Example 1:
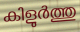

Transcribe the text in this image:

കിളുർത്തു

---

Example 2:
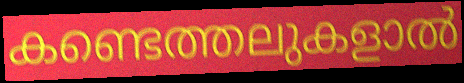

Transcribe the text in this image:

കണ്ടെത്തലുകളാൽ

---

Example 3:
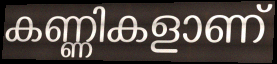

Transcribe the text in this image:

കണ്ണികളാണ്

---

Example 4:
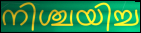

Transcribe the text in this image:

നിശ്ചയിച്ച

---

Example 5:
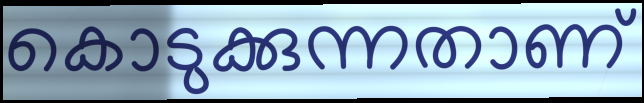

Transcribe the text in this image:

കൊടുക്കുന്നതാണ്